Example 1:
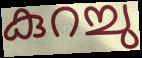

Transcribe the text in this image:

കുറച്ചു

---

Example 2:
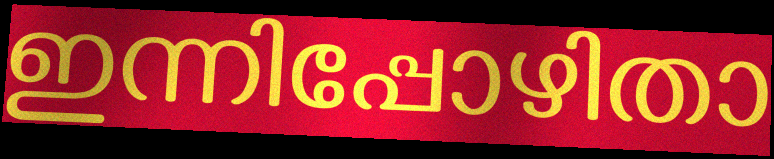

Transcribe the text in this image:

ഇന്നിപ്പോഴിതാ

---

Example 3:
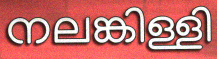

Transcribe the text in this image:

നലങ്കിള്ളി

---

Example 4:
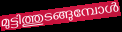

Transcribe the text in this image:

മുട്ടിത്തുടങ്ങുമ്പോൾ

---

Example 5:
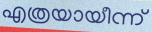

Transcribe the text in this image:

എത്രയായീന്ന്